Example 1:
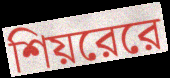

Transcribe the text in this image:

শিয়রেরে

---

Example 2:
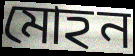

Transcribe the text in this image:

মোহন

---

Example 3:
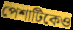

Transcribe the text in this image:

পেশাটিকেও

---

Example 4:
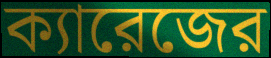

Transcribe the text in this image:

ক্যারেজের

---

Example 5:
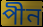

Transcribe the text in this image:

পীন